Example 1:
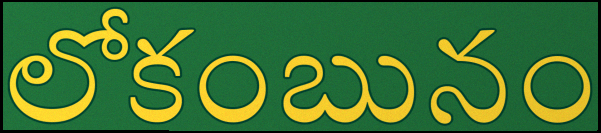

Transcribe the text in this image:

లోకంబునం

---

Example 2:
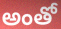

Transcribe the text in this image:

అంతో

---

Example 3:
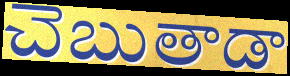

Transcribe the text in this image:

చెబుతాడా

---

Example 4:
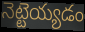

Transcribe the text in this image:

నెట్టెయ్యడం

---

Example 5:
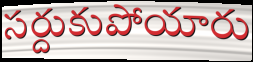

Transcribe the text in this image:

సర్దుకుపోయారు